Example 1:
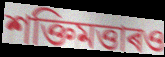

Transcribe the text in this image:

শক্তিমত্তাৰও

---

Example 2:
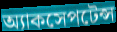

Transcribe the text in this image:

অ্যাকসেপটেন্স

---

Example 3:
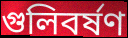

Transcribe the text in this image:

গুলিবৰ্ষণ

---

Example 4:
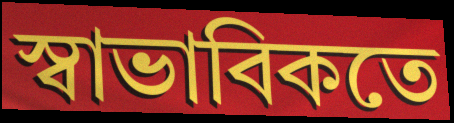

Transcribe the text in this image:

স্বাভাবিকতে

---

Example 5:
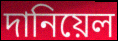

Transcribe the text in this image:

দানিয়েল